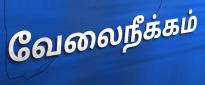
வேலைநீக்கம்